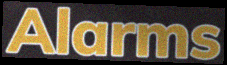
Alarms